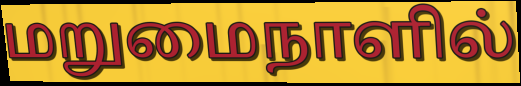
மறுமைநாளில்